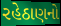
રહેઠાણનો